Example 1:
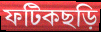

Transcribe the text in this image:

ফটিকছড়ি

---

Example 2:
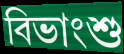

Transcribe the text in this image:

বিভাংশু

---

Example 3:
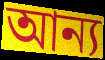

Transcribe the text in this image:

আন্য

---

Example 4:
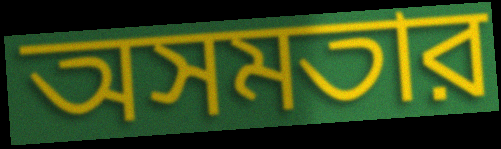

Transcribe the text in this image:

অসমতার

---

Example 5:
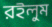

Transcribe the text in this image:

রইলুম